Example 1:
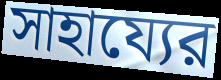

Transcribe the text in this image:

সাহায্যের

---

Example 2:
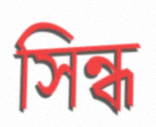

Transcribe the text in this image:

সিন্ধ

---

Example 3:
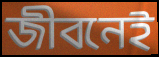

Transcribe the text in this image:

জীবনেই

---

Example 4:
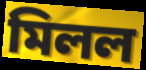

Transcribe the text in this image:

মিলল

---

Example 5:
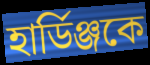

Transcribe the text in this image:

হার্ডিঞ্জকে